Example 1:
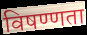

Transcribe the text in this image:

विषण्णता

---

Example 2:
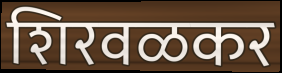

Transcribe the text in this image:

शिरवळकर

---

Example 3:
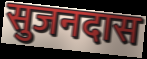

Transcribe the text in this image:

सुजनदास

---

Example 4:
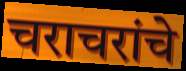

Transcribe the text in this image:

चराचरांचे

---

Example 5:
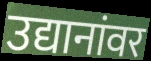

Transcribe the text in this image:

उद्यानांवर